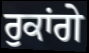
ਰੁਕਾਂਗੇ